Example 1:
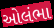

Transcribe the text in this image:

ઓલંભા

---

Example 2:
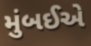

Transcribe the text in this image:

મુંબઈએ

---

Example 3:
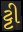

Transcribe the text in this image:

ટ્ટી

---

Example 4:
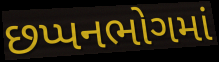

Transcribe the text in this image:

છપ્પનભોગમાં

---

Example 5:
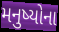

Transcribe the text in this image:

મનુષ્યોના